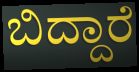
ಬಿದ್ದಾರೆ